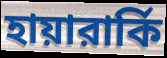
হায়ারার্কি